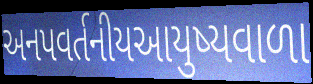
અનપવર્તનીયઆયુષ્યવાળા